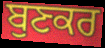
ਬੁਣਕਰ